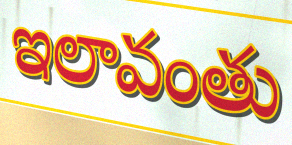
ఇలావంతు